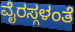
ವೈರಸ್ಗಳಂತೆ